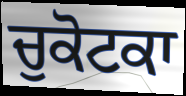
ਚੁਕੋਟਕਾ